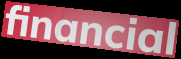
financial